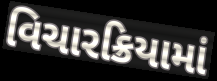
વિચારક્રિયામાં